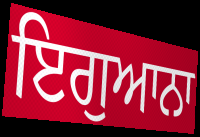
ਇਗੁਆਨਾ